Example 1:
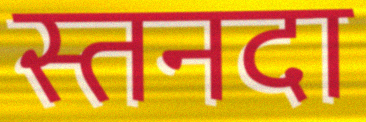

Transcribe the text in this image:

स्तनदा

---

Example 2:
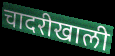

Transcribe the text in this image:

चादरीखाली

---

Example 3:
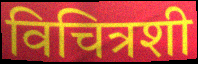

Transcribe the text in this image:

विचित्रशी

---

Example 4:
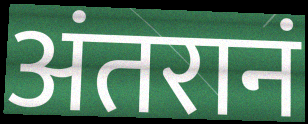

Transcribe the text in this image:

अंतरानं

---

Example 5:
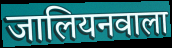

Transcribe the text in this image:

जालियनवाला